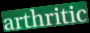
arthritic